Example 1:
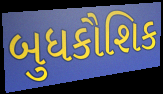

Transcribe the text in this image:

બુધકૌશિક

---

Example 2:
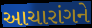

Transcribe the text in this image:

આચારાંગને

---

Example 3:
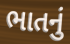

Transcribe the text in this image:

ભાતનું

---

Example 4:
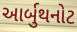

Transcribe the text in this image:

આર્બુથનોટ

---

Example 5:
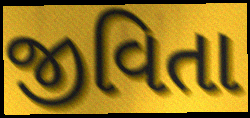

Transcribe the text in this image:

જીવિતા